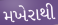
મખેરાથી